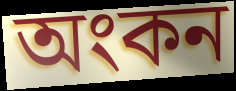
অংকন